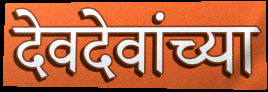
देवदेवांच्या